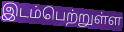
இடம்பெற்றுள்ள